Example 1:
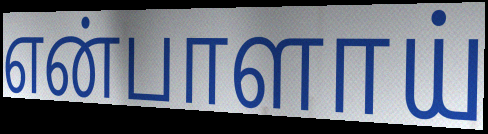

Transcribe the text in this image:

என்பாளாய்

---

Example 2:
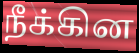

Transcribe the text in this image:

நீக்கின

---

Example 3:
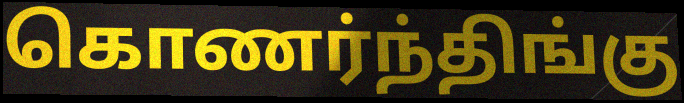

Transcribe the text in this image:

கொணர்ந்திங்கு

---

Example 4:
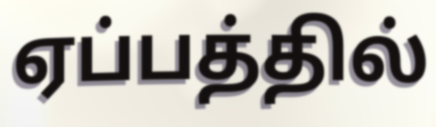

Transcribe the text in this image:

ஏப்பத்தில்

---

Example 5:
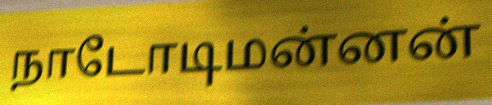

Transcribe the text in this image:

நாடோடிமன்னன்